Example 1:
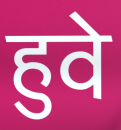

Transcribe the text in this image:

हुवे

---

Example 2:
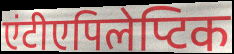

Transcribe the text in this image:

एंटीएपिलेप्टिक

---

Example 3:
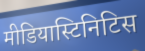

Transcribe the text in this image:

मीडियास्टिनिटिस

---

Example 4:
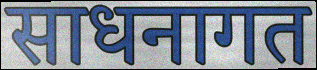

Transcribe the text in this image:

साधनागत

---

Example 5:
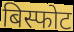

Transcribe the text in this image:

बिस्फोट